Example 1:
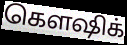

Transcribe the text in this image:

கௌஷிக்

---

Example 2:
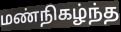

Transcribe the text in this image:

மண்நிகழ்ந்த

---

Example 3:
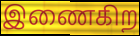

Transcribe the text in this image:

இணைகிற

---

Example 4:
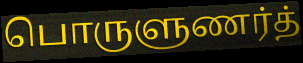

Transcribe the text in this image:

பொருளுணர்த்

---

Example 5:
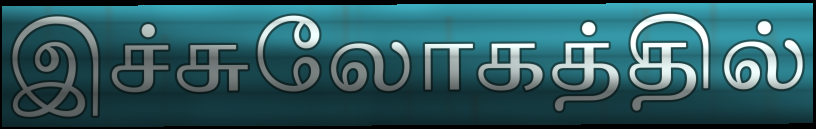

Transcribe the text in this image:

இச்சுலோகத்தில்